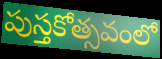
పుస్తకోత్సవంలో